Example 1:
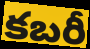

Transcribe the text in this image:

కబరీ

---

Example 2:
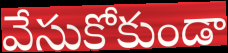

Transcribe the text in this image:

వేసుకోకుండా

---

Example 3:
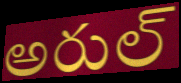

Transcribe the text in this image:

అరుల్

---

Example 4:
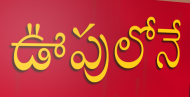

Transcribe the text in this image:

ఊపులోనే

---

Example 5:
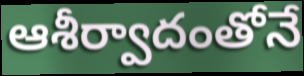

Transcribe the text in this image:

ఆశీర్వాదంతోనే